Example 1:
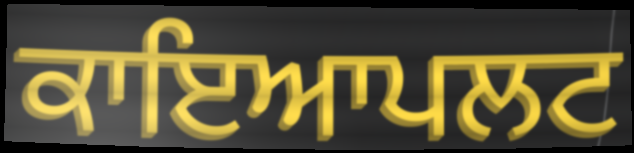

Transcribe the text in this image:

ਕਾਇਆਪਲਟ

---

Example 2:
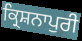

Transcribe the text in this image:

ਕ੍ਰਿਸ਼ਨਾਪੁਰੀ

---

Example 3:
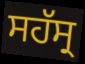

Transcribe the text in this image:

ਸਹੱਸ੍ਰ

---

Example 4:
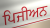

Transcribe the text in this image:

ਪਿਜੀਅਨ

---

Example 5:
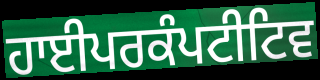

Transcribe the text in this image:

ਹਾਈਪਰਕੰਪਟੀਟਿਵ